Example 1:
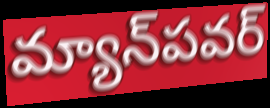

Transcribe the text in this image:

మ్యాన్‌పవర్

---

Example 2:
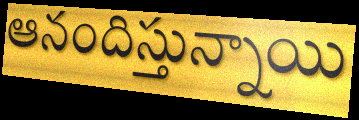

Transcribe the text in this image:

ఆనందిస్తున్నాయి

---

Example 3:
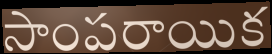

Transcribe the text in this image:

సాంపరాయిక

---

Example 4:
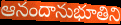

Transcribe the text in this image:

ఆనందానుభూతిని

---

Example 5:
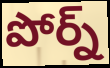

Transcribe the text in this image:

పోర్న్